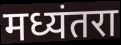
मध्यंतरा